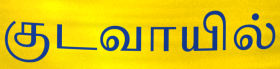
குடவாயில்